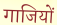
गाजियों